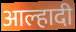
आल्हादी